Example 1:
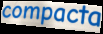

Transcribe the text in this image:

compacta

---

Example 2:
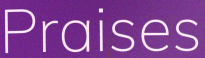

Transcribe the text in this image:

Praises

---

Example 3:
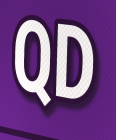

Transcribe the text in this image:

QD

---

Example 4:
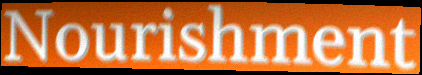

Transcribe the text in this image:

Nourishment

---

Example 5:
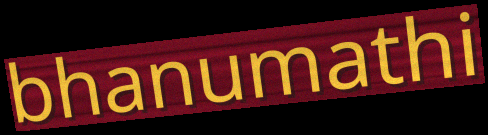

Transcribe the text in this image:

bhanumathi